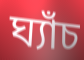
ঘ্যাঁচ